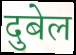
दुबेल